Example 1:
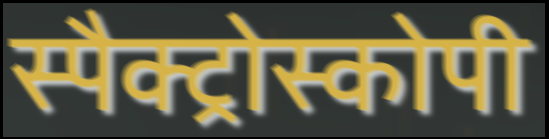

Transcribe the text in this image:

स्पैक्ट्रोस्कोपी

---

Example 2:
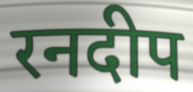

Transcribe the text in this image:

रनदीप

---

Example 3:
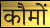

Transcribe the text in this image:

कौमों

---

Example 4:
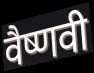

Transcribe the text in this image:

वैष्णवी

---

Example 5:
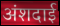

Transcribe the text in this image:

अंशदाई